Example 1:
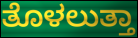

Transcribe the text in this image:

ತೊಳಲುತ್ತಾ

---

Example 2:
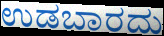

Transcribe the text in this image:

ಉಡಬಾರದು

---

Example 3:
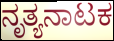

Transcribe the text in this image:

ನೃತ್ಯನಾಟಕ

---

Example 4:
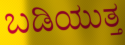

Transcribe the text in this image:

ಬಡಿಯುತ್ತ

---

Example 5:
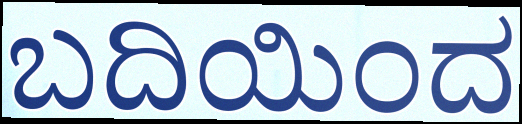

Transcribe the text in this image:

ಬದಿಯಿಂದ